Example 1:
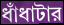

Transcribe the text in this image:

ধাঁধাটার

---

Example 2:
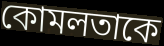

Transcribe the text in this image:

কোমলতাকে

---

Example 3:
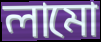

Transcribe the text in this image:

লামো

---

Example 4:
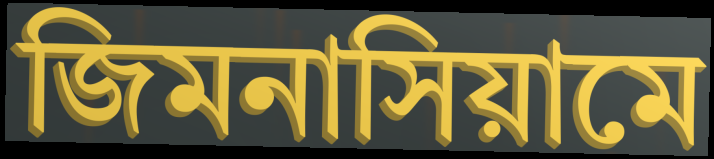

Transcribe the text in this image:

জিমনাসিয়ামে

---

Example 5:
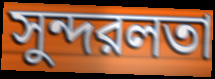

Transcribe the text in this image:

সুন্দরলতা